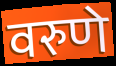
वरुणे